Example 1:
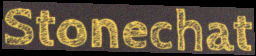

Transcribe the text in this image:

Stonechat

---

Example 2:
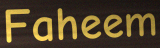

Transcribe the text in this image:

Faheem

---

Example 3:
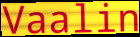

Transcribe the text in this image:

Vaalin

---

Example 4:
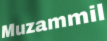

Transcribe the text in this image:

Muzammil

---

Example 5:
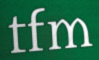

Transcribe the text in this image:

tfm